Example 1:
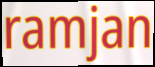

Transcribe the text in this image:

ramjan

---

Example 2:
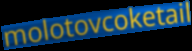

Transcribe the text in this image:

molotovcoketail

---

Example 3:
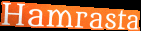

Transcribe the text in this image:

Hamrasta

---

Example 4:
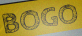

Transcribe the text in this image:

BOGO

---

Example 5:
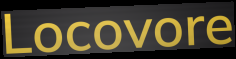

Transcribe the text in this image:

Locovore